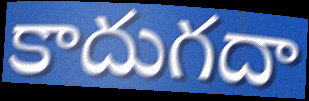
కాదుగదా